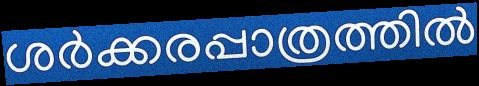
ശർക്കരപ്പാത്രത്തിൽ